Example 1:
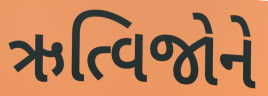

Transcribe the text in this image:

ઋત્વિજોને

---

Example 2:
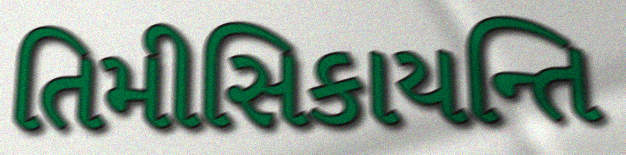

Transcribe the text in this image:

તિમીસિકાયન્તિ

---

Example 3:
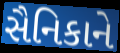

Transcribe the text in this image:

સૈનિકાને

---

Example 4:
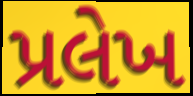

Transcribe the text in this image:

પ્રલેખ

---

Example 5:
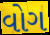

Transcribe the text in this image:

વોગ